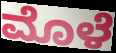
ಮೊಳೆ